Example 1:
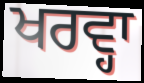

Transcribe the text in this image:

ਖਰਵ੍ਹਾ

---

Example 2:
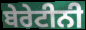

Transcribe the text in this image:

ਬੇਰੇਟੀਨੀ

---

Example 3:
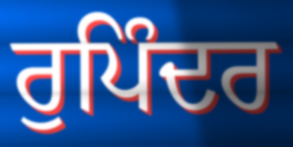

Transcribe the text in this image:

ਰੁਪਿੰਦਰ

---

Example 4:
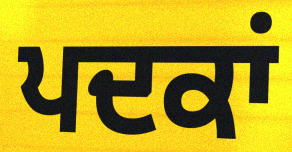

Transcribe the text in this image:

ਪਦਕਾਂ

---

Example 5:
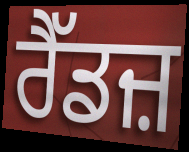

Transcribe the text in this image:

ਰੈੱਡਜ਼